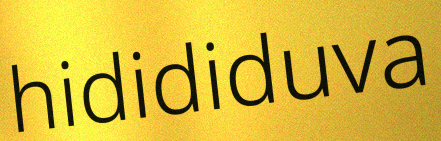
hidididuva